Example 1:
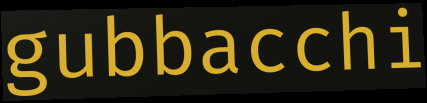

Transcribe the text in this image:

gubbacchi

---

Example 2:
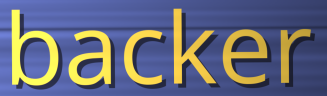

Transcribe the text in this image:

backer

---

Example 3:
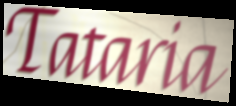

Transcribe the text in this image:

Tataria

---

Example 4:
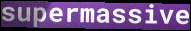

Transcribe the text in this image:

supermassive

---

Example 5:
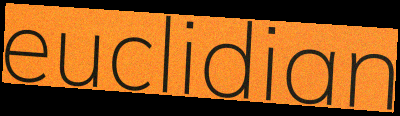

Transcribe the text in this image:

euclidian